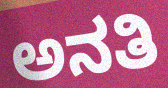
ಅನತಿ